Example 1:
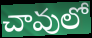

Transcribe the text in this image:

చావులో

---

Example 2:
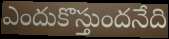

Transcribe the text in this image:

ఎందుకొస్తుందనేది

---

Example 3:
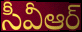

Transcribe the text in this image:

సీవీఆర్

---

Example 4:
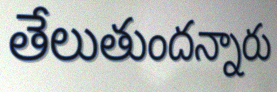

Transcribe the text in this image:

తేలుతుందన్నారు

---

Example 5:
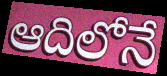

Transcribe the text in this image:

ఆదిలోనే